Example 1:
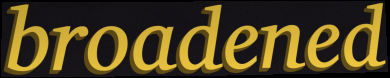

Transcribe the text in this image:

broadened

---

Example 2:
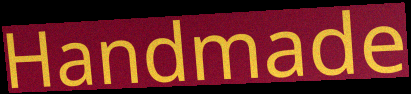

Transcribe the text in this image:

Handmade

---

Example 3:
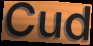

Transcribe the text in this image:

Cud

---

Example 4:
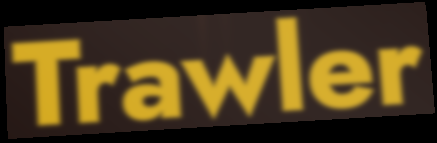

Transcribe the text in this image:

Trawler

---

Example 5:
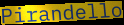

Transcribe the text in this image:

Pirandello